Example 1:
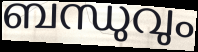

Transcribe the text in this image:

ബന്ധുവും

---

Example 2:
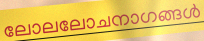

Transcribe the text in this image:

ലോലലോചനാഗങ്ങൾ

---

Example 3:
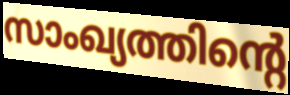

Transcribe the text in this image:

സാംഖ്യത്തിന്റെ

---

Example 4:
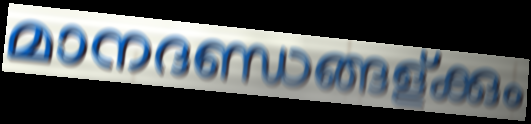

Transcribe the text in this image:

മാനദണ്ഡങ്ങള്ക്കും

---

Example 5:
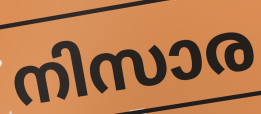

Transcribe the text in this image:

നിസാര